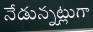
నేడున్నట్లుగా